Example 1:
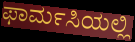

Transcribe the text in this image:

ಫಾರ್ಮಸಿಯಲ್ಲಿ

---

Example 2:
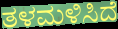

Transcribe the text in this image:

ತಳಮಳಿಸಿದೆ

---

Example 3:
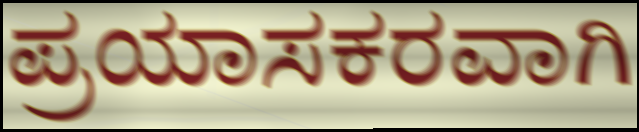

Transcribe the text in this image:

ಪ್ರಯಾಸಕರವಾಗಿ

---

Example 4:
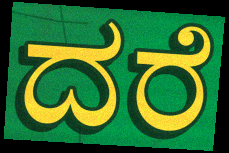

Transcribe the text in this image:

ದರೆ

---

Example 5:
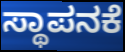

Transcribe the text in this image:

ಸ್ಥಾಪನಕೆ